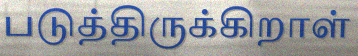
படுத்திருக்கிறாள்